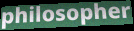
philosopher